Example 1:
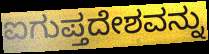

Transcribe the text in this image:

ಐಗುಪ್ತದೇಶವನ್ನು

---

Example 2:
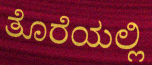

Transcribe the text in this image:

ತೊರೆಯಲ್ಲಿ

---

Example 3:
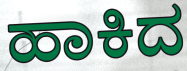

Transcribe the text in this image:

ಹಾಕಿದ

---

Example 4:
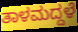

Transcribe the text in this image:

ತಾಳಮದ್ದಳೆ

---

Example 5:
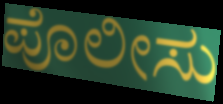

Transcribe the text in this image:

ಪೊಲೀಸು